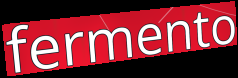
fermento